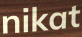
nikat